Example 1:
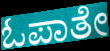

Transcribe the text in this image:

ಓಪಾತೇ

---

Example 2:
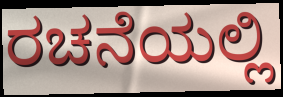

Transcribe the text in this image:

ರಚನೆಯಲ್ಲಿ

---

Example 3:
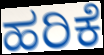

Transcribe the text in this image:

ಹರಿಕೆ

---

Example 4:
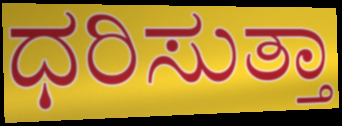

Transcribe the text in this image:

ಧರಿಸುತ್ತಾ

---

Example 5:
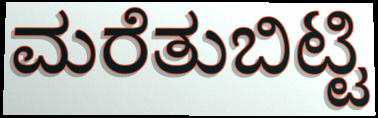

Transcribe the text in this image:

ಮರೆತುಬಿಟ್ಟಿ